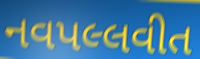
નવપલ્લવીત